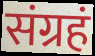
संग्रहं